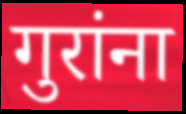
गुरांना